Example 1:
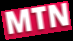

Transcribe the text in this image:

MTN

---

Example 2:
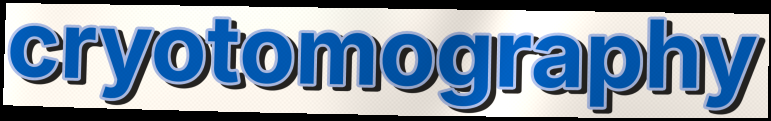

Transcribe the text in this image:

cryotomography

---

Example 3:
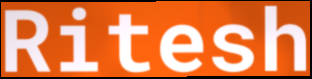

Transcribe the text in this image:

Ritesh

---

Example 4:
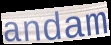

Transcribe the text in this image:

andam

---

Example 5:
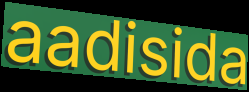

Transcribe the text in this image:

aadisida